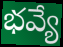
భవ్యే